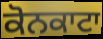
ਕੋਨਕਾਟਾ